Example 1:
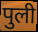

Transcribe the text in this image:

पुली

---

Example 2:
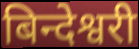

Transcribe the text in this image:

बिन्देश्वरी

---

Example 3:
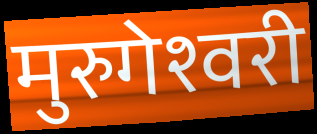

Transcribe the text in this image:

मुरुगेश्वरी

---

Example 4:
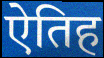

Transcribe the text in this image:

ऐतिह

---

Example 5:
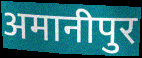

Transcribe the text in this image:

अमानीपुर